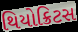
થિયોક્રિટસ